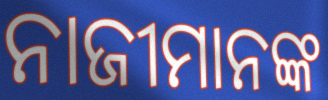
ନାଜୀମାନଙ୍କ